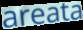
areata